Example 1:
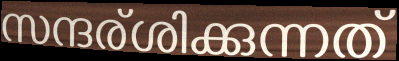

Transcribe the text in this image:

സന്ദര്ശിക്കുന്നത്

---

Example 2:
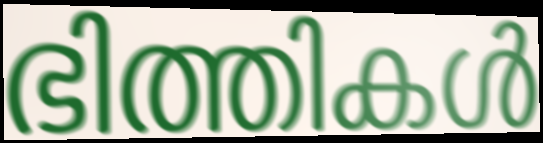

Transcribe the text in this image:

ഭിത്തികൾ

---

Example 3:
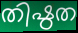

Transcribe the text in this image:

തിഷ്ഠത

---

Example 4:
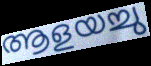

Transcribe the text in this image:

ആളയച്ചു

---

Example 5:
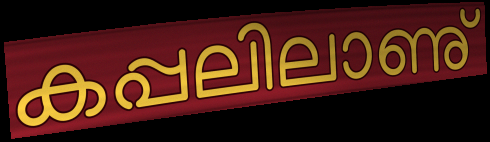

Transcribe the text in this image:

കപ്പലിലാണു്